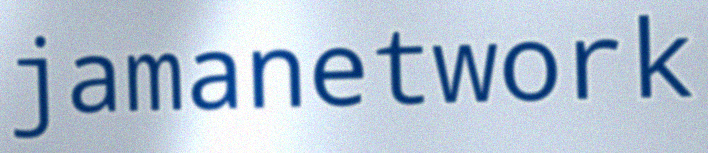
jamanetwork